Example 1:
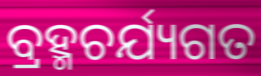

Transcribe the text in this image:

ବ୍ରହ୍ମଚର୍ଯ୍ୟଗତ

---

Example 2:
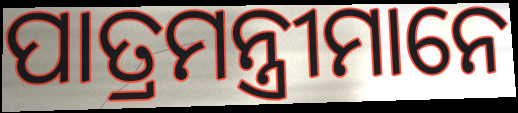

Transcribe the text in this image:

ପାତ୍ରମନ୍ତ୍ରୀମାନେ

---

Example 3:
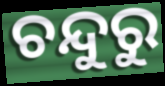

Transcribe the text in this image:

ଚନ୍ଦୁରୁ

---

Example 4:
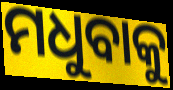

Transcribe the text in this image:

ମଧୁବାକୁ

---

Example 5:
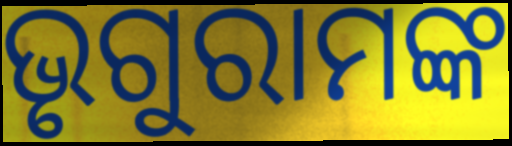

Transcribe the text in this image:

ଭୃଗୁରାମଙ୍କ